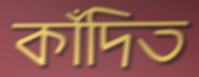
কাঁদিত